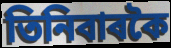
তিনিবাৰকৈ